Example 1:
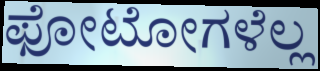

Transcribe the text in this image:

ಫೋಟೋಗಳೆಲ್ಲ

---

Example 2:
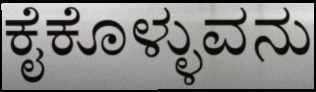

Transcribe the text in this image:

ಕೈಕೊಳ್ಳುವನು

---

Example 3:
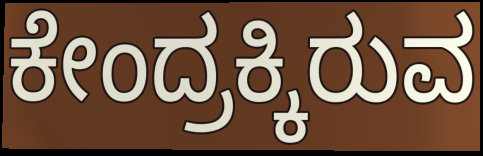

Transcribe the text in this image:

ಕೇಂದ್ರಕ್ಕಿರುವ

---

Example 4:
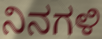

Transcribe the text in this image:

ನಿನಗಳಿ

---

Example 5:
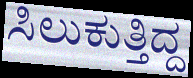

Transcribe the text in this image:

ಸಿಲುಕುತ್ತಿದ್ದ